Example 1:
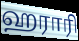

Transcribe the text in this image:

ஹராரி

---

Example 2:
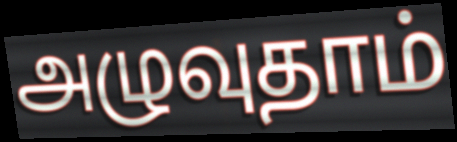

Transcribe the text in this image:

அழுவுதாம்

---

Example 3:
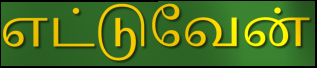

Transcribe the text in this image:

எட்டுவேன்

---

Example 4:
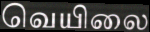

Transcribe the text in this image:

வெயிலை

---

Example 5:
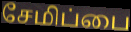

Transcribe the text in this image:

சேமிப்பை